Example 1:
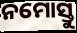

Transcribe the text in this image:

ନମୋସ୍ତୁ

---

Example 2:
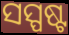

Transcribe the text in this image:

ସସ୍ପଷ୍ଟ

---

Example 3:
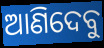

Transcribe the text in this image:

ଆଣିଦେବୁ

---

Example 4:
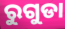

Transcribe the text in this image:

ରୁଗୁଡା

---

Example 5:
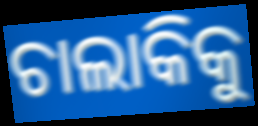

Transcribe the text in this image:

ଚାଲାକିକୁ